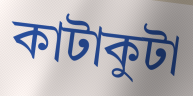
কাটাকুটা